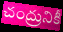
చంద్రునికీ